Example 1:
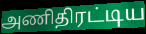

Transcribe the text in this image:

அணிதிரட்டிய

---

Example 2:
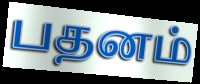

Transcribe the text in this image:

பதனம்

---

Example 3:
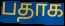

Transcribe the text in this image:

பதாக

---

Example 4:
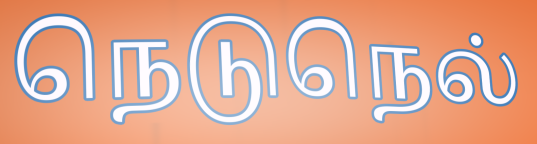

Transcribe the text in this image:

நெடுநெல்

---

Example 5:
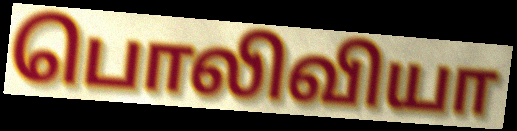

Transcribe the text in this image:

பொலிவியா